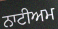
ਨਾਟੀਅਮ